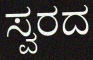
ಸ್ವರದ